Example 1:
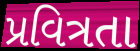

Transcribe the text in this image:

પ્રવિત્રતા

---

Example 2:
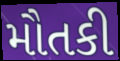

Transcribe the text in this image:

મૌતકી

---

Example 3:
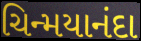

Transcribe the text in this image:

ચિન્મયાનંદા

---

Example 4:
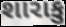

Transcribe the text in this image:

શારાકુ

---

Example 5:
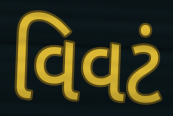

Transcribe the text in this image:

વિવટં